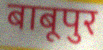
बाबूपुर